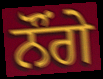
ਨੌਂਗੇ